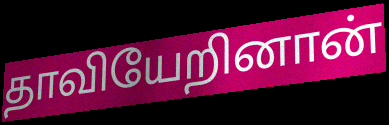
தாவியேறினான்